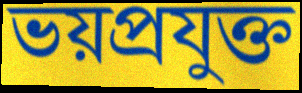
ভয়প্রযুক্ত